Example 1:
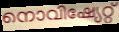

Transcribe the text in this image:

നൊവിഷ്യേറ്റ്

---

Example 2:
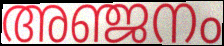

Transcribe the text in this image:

അഞ്ജനം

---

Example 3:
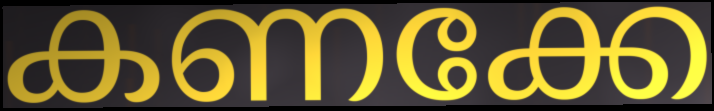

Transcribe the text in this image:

കണക്കേ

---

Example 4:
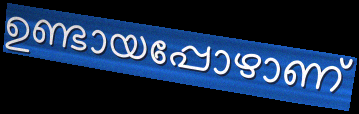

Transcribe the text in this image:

ഉണ്ടായപ്പോഴാണ്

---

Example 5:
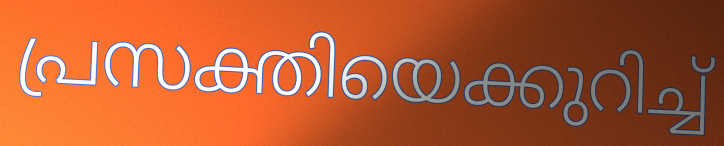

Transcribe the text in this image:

പ്രസക്തിയെക്കുറിച്ച്